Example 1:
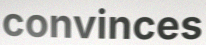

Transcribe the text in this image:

convinces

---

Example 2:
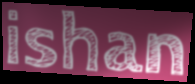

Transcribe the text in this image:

ishan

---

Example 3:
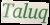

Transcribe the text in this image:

Taluq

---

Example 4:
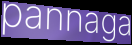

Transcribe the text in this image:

pannaga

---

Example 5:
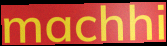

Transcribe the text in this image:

machhi